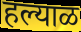
हल्याळ